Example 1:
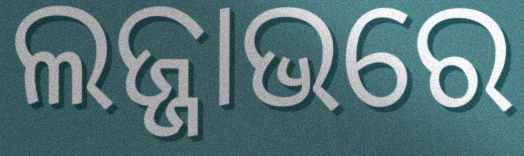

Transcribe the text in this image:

ଲଜ୍ଜାଭରେ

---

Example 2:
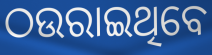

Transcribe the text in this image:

ଠଉରାଇଥିବେ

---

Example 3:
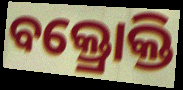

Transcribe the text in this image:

ବକ୍ତ୍ରୋକ୍ତି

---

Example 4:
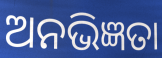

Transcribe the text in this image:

ଅନଭିଜ୍ଞତା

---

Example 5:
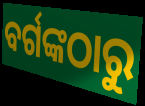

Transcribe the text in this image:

ବର୍ଗଙ୍କଠାରୁ